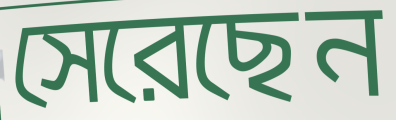
সেরেছেন